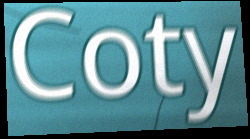
Coty